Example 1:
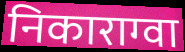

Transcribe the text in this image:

निकाराग्वा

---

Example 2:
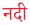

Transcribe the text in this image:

नदी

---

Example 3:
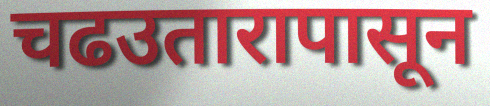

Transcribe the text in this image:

चढउतारापासून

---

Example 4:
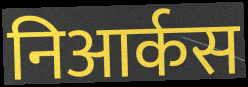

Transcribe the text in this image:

निआर्कस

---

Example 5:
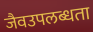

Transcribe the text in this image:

जैवउपलब्धता